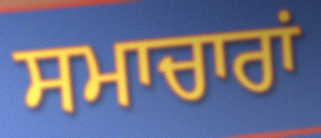
ਸਮਾਚਾਰਾਂ